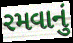
રમવાનું